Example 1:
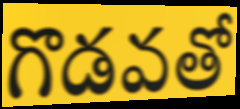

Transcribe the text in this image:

గొడవతో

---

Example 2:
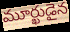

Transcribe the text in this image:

మూర్ఖుడైన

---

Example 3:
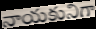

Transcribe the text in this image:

నాయకునిగా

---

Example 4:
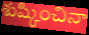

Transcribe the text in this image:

శుష్కించినా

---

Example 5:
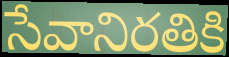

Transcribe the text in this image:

సేవానిరతికి